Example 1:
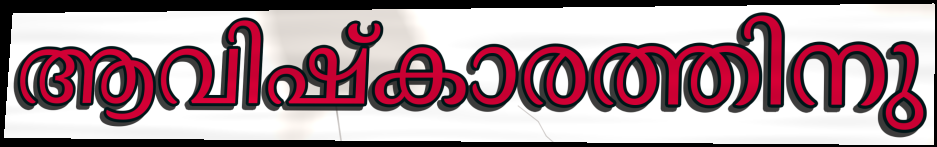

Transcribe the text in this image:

ആവിഷ്കാരത്തിനു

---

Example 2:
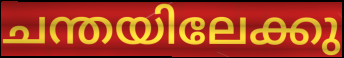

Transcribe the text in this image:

ചന്തയിലേക്കു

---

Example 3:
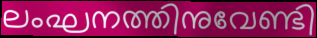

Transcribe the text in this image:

ലംഘനത്തിനുവേണ്ടി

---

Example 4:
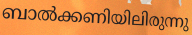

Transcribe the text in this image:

ബാൽക്കണിയിലിരുന്നു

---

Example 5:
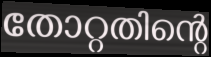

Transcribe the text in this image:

തോറ്റതിന്റെ